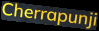
Cherrapunji